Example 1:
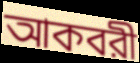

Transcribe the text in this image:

আকবরী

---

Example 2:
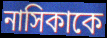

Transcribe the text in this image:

নাসিকাকে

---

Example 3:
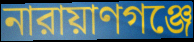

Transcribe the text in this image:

নারায়াণগঞ্জে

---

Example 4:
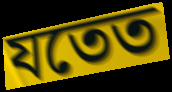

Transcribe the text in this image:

যতেত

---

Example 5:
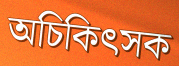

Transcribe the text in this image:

অচিকিৎসক